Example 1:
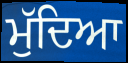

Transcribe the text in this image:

ਮੁੱਦਿਆ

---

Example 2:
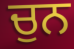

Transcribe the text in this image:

ਚੁਨ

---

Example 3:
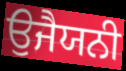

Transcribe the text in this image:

ਉਜੈਯਨੀ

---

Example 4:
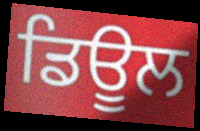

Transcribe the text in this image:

ਡਿਊਲ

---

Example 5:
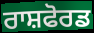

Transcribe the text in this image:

ਰਾਸ਼ਫੋਰਡ